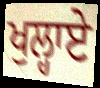
ਖੁਲ੍ਹਾਏ